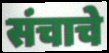
संचाचे